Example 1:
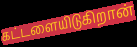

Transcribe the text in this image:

கட்டளையிடுகிறான்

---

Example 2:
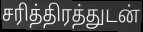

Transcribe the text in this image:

சரித்திரத்துடன்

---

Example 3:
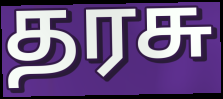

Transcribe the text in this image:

தரசு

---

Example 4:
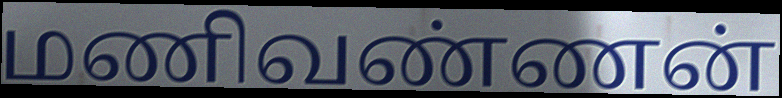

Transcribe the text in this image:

மணிவண்ணன்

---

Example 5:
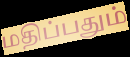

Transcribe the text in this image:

மதிப்பதும்